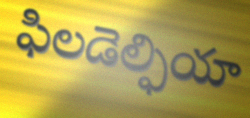
ఫిలడెల్ఫియా